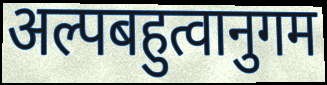
अल्पबहुत्वानुगम